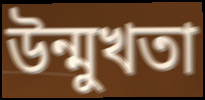
উন্মুখতা